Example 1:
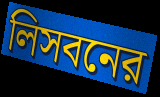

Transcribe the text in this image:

লিসবনের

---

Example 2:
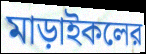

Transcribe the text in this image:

মাড়াইকলের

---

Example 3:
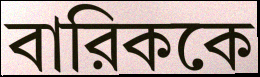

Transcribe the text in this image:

বারিককে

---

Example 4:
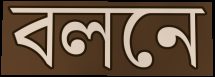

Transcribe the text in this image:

বলনে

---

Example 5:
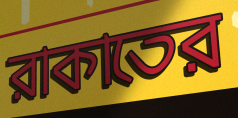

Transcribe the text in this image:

রাকাতের